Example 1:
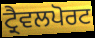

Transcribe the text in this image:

ਟ੍ਰੈਵਲਪੋਰਟ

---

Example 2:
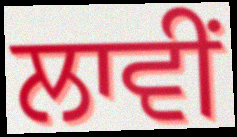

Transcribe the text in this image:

ਲਾਵੀਂ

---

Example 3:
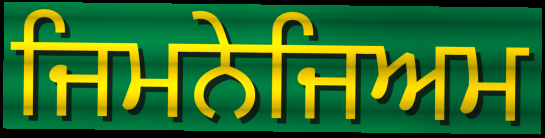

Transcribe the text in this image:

ਜਿਮਨੇਜਿਅਮ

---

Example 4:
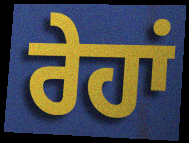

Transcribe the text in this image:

ਰੇਹਾਂ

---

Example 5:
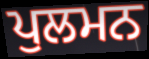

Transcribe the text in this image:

ਪੁਲਮਨ